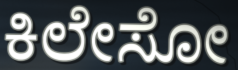
ಕಿಲೇಸೋ